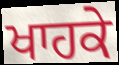
ਖਾਹਕੇ